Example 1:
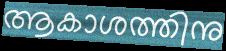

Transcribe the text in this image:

ആകാശത്തിനു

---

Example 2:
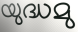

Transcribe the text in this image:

യുദ്ധമു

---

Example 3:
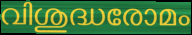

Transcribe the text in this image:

വിശുദ്ധരോമം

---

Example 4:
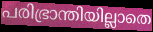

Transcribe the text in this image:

പരിഭ്രാന്തിയില്ലാതെ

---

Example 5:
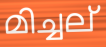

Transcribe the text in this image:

മിച്ചല്